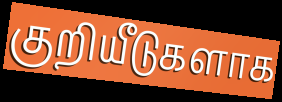
குறியீடுகளாக